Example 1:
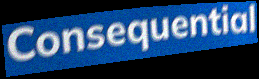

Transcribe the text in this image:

Consequential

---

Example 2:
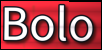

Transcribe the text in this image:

Bolo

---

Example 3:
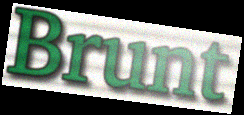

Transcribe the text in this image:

Brunt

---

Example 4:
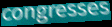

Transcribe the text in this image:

congresses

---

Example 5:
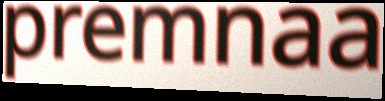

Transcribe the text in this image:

premnaa